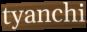
tyanchi